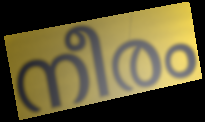
നീരം